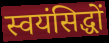
स्वयंसिद्धों